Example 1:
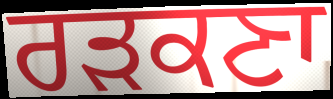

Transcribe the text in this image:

ਰੜਕਣਾ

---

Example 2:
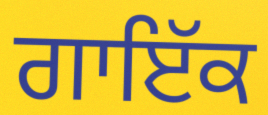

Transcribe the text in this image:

ਗਾਇੱਕ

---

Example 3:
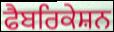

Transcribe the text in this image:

ਫੈਬਰਿਕੇਸ਼ਨ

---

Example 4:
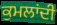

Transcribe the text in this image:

ਕੁਮਲਾਂਦੀ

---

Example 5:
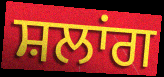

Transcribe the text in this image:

ਸ਼ਲਾਂਗ